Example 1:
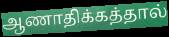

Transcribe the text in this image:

ஆணாதிக்கத்தால்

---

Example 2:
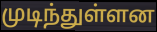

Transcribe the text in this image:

முடிந்துள்ளன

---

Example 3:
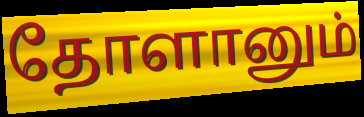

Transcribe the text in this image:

தோளானும்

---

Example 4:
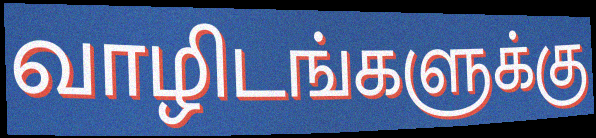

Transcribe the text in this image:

வாழிடங்களுக்கு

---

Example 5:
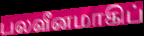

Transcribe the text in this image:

பலவீனமாகிப்